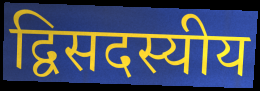
द्विसदस्यीय